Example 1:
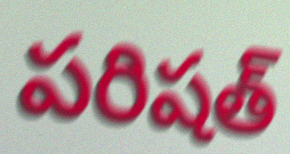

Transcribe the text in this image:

పరిషత్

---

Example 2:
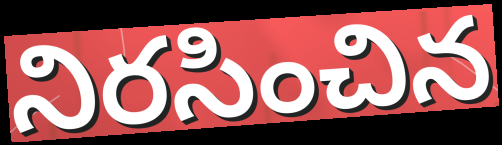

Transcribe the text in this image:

నిరసించిన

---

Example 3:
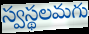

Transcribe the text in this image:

స్వస్థలమగు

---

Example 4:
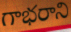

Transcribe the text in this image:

గాభరాని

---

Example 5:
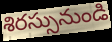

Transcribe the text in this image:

శిరస్సునుండి